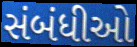
સંબંધીઓ